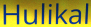
Hulikal